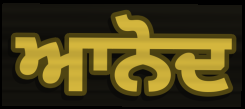
ਆਨੋਦ